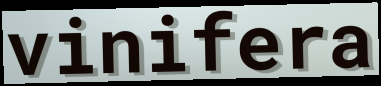
vinifera